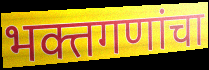
भक्तगणांचा